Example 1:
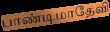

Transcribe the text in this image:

பாண்டிமாதேவி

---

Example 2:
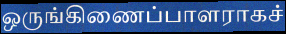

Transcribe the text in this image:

ஒருங்கிணைப்பாளராகச்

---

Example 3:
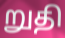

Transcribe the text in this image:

றுதி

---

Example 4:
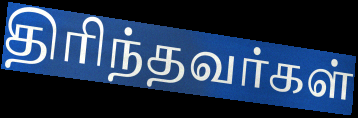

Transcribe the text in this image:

திரிந்தவர்கள்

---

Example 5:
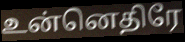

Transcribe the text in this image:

உன்னெதிரே